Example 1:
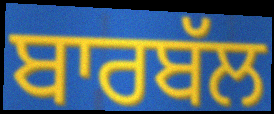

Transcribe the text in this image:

ਬਾਰਬੱਲ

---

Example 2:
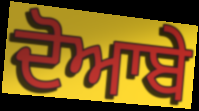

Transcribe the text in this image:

ਦੋਆਬੇ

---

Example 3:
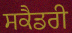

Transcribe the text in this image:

ਸਕੈਡਰੀ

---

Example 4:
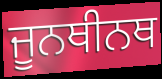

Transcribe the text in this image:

ਜੂਨਥੀਨਥ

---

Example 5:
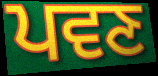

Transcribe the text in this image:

ਪਵਣ